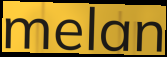
melan